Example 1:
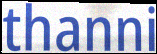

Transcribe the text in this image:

thanni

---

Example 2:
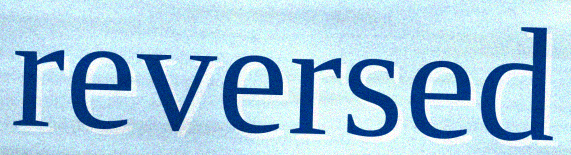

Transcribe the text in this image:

reversed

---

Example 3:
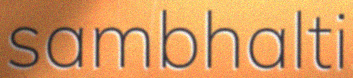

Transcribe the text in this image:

sambhalti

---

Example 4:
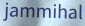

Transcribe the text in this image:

jammihal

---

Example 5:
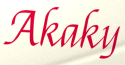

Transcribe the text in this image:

Akaky